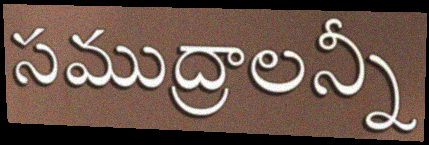
సముద్రాలన్నీ